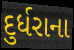
દુર્ધરાના